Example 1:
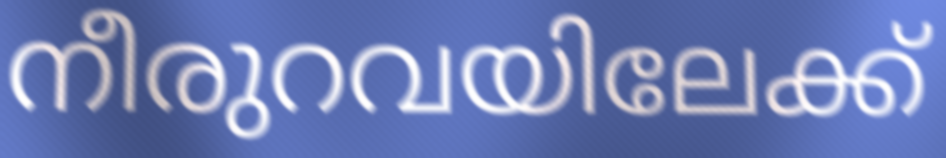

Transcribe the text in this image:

നീരുറവയിലേക്ക്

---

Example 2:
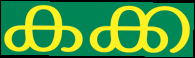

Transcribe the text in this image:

കക്ക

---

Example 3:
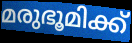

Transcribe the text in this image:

മരുഭൂമിക്ക്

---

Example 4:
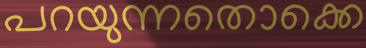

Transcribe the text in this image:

പറയുന്നതൊക്കെ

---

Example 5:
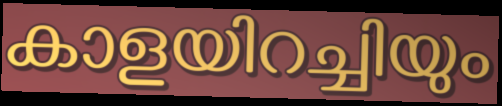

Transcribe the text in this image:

കാളയിറച്ചിയും